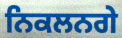
ਨਿਕਲਨਗੇ